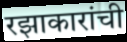
रझाकारांची